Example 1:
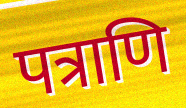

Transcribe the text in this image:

पत्राणि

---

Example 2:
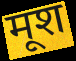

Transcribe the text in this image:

मूश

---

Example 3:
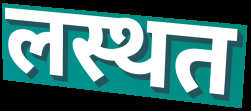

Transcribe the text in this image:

लस्थत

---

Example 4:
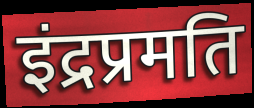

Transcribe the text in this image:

इंद्रप्रमति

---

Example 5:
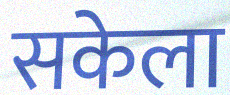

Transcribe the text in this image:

सकेला